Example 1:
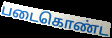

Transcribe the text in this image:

படைகொண்ட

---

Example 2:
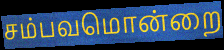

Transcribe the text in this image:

சம்பவமொன்றை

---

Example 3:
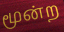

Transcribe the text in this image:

மூன்ற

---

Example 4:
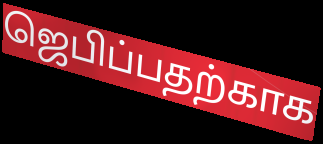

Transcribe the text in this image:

ஜெபிப்பதற்காக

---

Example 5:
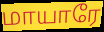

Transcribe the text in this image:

மாயாரே